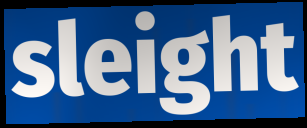
sleight